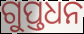
ଗୁପ୍ତଧନ